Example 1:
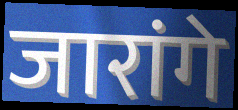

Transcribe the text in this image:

जारांगे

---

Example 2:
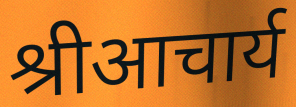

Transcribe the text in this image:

श्रीआचार्य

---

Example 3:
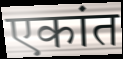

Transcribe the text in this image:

एकांत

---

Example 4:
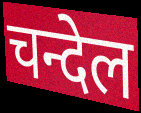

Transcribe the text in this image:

चन्देल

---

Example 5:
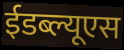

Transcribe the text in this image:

ईडब्ल्यूएस